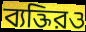
ব্যক্তিরও